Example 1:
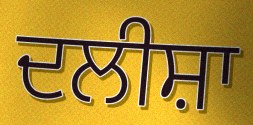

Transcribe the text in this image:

ਦਲੀਸ਼ਾ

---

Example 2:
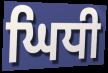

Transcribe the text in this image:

ਘਿਧੀ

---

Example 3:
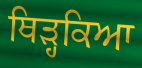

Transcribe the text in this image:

ਥਿੜ੍ਹਕਿਆ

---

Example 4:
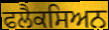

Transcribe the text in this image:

ਫਲੈਕਸਿਅਨ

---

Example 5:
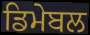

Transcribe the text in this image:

ਡਿਮੇਬਲ